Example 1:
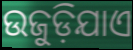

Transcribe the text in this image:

ଉଜୁଡ଼ିଯାଏ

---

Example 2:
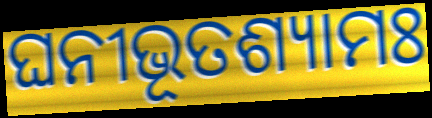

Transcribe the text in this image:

ଘନୀଭୂତଶ୍ୟାମଃ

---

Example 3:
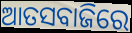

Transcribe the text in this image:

ଆତସବାଜିରେ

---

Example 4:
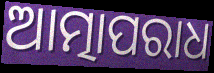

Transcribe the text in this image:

ଆତ୍ମାପରାଧ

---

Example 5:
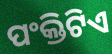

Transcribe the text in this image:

ପଂକ୍ତିଟିଏ